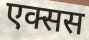
एक्सस